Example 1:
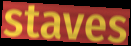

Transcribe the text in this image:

staves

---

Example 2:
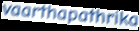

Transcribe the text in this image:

vaarthapathrika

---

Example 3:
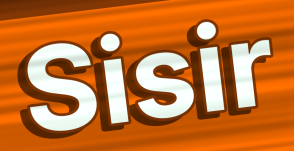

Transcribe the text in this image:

Sisir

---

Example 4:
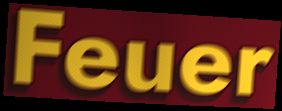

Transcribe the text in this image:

Feuer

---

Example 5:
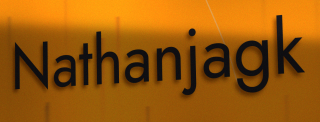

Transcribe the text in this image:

Nathanjagk